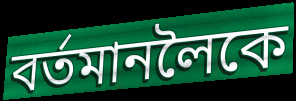
বৰ্তমানলৈকে